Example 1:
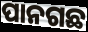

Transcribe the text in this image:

ପାନଗଛ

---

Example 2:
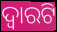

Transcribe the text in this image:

ଦ୍ୱାରଟି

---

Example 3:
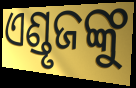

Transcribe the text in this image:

ଏଣ୍ଡୃଜଙ୍କୁ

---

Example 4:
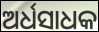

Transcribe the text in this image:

ଅର୍ଧସାଧକ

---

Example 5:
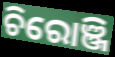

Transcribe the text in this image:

ଚିରୋଞ୍ଜି